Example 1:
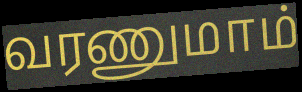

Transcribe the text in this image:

வரணுமாம்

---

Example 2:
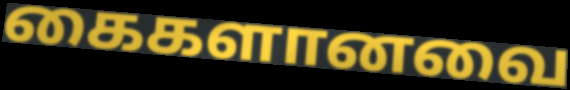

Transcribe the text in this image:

கைகளானவை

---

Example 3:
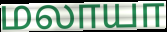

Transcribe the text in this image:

மலாயா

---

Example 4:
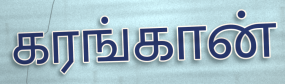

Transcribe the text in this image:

கரங்கான்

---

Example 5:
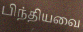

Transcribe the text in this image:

பிந்தியவை